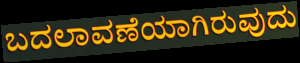
ಬದಲಾವಣೆಯಾಗಿರುವುದು